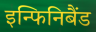
इन्फिनिबैंड